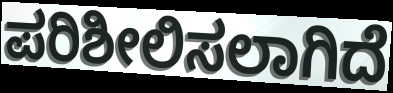
ಪರಿಶೀಲಿಸಲಾಗಿದೆ